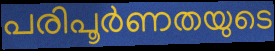
പരിപൂർണതയുടെ